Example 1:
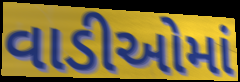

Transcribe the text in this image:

વાડીઓમાં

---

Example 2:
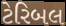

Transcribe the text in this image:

ટેરિબલ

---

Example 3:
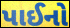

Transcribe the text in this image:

પાઈનો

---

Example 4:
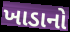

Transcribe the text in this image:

ખાડાનો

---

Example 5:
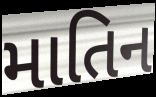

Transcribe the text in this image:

માતિન